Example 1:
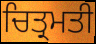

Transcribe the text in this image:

ਚਿਤ੍ਰਮਤੀ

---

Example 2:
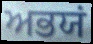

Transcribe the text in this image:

ਅਭਯਂ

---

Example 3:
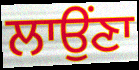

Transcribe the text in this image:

ਲਾਉਂਣਾ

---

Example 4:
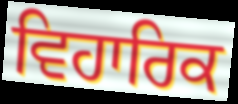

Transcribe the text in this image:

ਵਿਹਾਰਿਕ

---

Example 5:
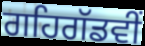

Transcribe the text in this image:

ਗਹਿਗੱਡਵੀਂ